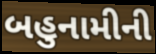
બહુનામીની